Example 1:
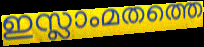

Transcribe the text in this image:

ഇസ്ലാംമതത്തെ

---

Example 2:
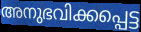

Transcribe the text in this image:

അനുഭവിക്കപ്പെട്ട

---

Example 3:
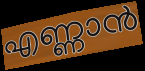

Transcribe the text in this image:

എണ്ണാൻ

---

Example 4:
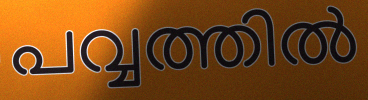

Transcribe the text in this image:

പവ്വത്തിൽ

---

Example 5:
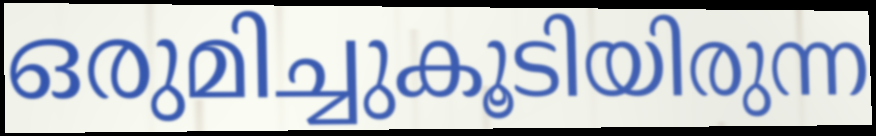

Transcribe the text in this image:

ഒരുമിച്ചുകൂടിയിരുന്ന